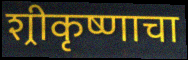
श्रीकृष्णाचा